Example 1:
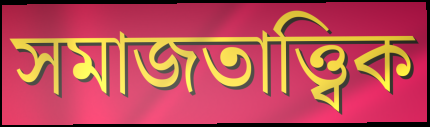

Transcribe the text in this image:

সমাজতাত্ত্বিক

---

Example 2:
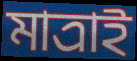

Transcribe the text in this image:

মাত্ৰাই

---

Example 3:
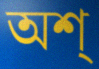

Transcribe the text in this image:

অশ্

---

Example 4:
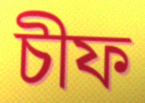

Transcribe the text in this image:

চীফ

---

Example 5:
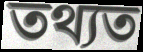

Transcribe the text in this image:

তথ্যত